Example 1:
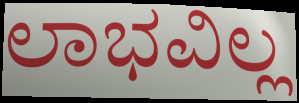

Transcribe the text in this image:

ಲಾಭವಿಲ್ಲ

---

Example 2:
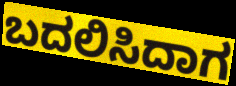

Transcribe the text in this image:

ಬದಲಿಸಿದಾಗ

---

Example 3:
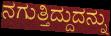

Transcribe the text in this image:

ನಗುತ್ತಿದ್ದುದನ್ನು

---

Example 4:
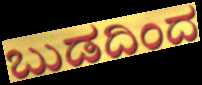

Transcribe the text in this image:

ಬುಡದಿಂದ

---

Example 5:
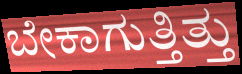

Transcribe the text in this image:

ಬೇಕಾಗುತ್ತಿತ್ತು